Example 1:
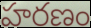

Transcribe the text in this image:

హరణం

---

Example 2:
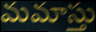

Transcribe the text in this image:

మమాస్తు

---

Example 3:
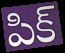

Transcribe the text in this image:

పిక్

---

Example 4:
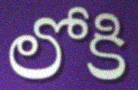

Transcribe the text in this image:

లోకి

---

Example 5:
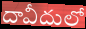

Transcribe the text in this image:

దావీదులో